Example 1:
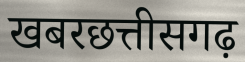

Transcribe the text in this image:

खबरछत्तीसगढ़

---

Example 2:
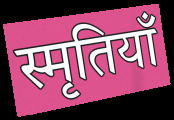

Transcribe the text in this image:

स्मृतियाँ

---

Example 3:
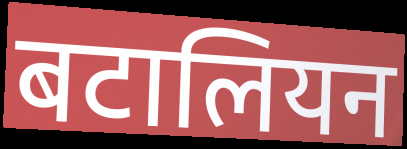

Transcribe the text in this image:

बटालियन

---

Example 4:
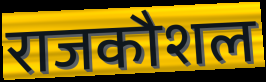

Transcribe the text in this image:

राजकौशल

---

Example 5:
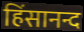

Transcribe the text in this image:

हिंसानन्द